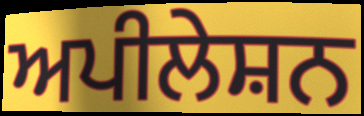
ਅਪੀਲੇਸ਼ਨ